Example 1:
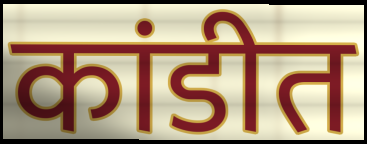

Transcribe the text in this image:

कांडीत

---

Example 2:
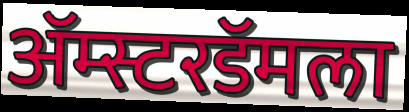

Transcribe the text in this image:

ॲम्स्टरडॅमला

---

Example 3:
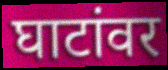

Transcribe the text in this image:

घाटांवर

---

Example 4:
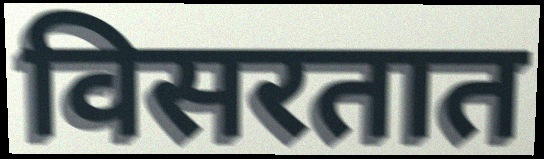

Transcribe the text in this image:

विसरतात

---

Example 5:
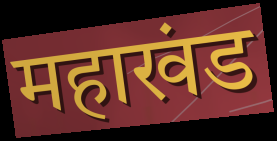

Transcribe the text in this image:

महाखंड